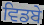
ਵਿਡਬੇ